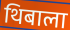
थिबाला